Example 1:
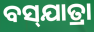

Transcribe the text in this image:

ବସ୍‌ଯାତ୍ରା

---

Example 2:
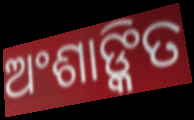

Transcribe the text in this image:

ଅଂଶାଙ୍କିତ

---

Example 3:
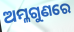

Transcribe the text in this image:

ଅମ୍ଳଗୁଣରେ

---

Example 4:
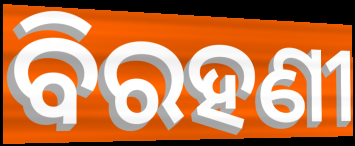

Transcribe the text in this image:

ବିରହଣୀ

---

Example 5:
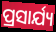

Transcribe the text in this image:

ପ୍ରସାର୍ଯ୍ୟ